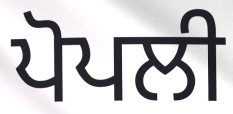
ਪੋਪਲੀ